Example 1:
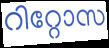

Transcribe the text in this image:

റിറ്റോസ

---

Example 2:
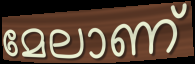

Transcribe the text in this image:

മേലാണ്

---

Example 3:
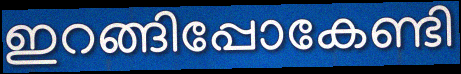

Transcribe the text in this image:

ഇറങ്ങിപ്പോകേണ്ടി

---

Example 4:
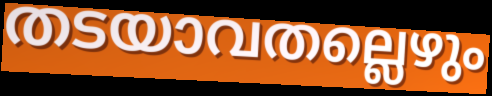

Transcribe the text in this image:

തടയാവതല്ലെഴും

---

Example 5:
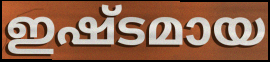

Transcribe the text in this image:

ഇഷ്ടമായ